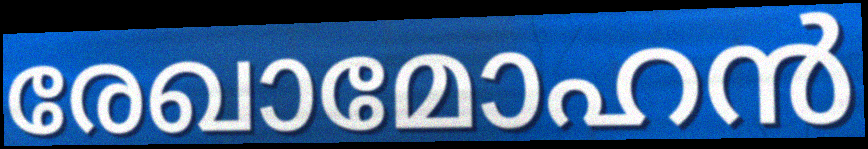
രേഖാമോഹൻ